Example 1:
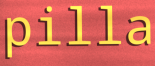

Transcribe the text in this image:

pilla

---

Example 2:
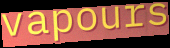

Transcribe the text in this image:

vapours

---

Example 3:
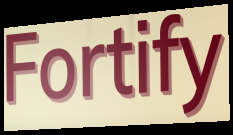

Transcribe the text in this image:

Fortify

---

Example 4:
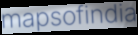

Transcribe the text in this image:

mapsofindia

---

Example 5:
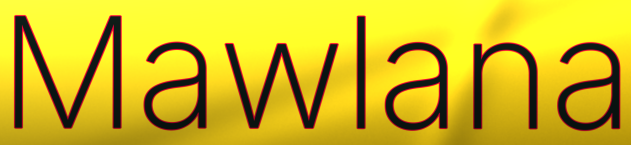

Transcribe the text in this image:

Mawlana